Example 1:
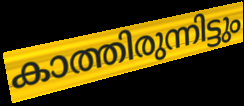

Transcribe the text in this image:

കാത്തിരുന്നിട്ടും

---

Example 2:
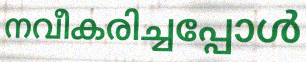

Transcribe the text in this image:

നവീകരിച്ചപ്പോൾ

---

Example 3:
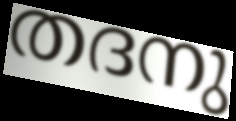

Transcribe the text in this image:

തദനു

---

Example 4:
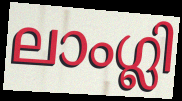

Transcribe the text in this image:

ലാംഗ്ലി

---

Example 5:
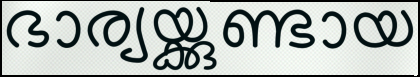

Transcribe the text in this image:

ഭാര്യയ്ക്കുണ്ടായ